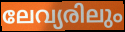
ലേവ്യരിലും